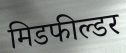
मिडफील्डर